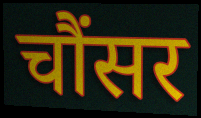
चौंसर